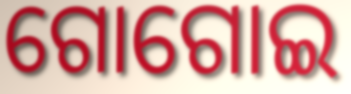
ଗୋଗୋଇ